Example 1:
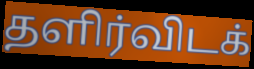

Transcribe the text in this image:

தளிர்விடக்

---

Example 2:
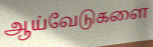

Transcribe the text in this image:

ஆய்வேடுகளை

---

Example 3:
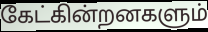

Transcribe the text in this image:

கேட்கின்றனகளும்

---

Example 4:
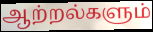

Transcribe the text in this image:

ஆற்றல்களும்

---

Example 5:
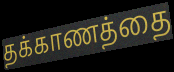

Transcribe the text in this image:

தக்காணத்தை